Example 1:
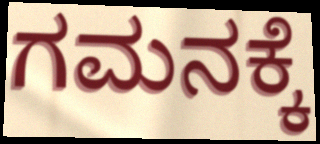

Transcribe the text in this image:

ಗಮನಕ್ಕೆ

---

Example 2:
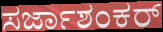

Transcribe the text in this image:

ಸರ್ಜಾಶಂಕರ್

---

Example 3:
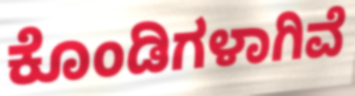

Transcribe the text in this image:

ಕೊಂಡಿಗಳಾಗಿವೆ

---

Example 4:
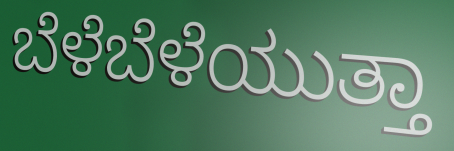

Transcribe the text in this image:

ಬೆಳೆಬೆಳೆಯುತ್ತಾ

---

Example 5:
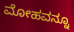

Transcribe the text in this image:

ಮೋಹವನ್ನೂ